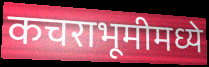
कचराभूमीमध्ये